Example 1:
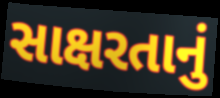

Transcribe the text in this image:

સાક્ષરતાનું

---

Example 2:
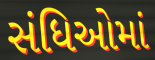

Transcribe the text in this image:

સંધિઓમાં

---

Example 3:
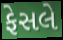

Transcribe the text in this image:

ફેસલે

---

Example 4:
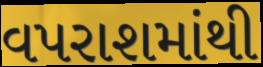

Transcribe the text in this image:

વપરાશમાંથી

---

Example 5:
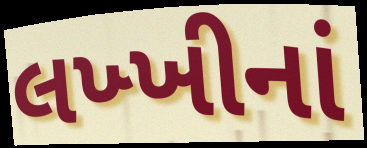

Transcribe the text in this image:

લખ્ખીનાં